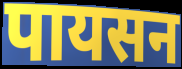
पायसन